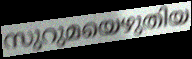
സുറുമയെഴുതിയ